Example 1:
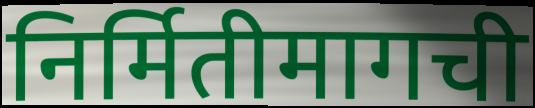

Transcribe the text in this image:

निर्मितीमागची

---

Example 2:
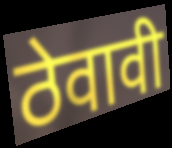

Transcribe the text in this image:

ठेवावी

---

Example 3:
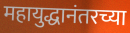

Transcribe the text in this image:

महायुद्धानंतरच्या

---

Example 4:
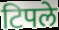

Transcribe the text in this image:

टिपले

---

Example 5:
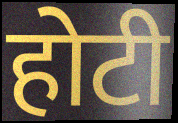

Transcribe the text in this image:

होटी